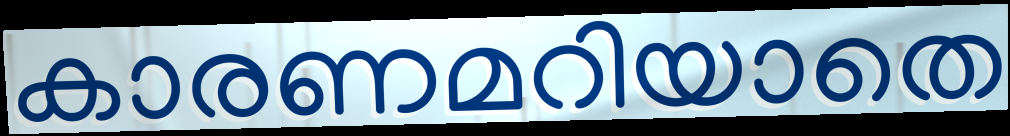
കാരണമറിയാതെ